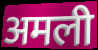
अमली